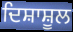
ਦਿਸ਼ਾਸ਼ੂਲ